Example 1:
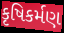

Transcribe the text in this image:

કૃષિકર્મણ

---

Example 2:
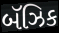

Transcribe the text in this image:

બૅઝિક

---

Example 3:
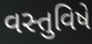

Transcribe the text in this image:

વસ્તુવિષે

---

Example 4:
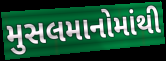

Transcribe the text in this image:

મુસલમાનોમાંથી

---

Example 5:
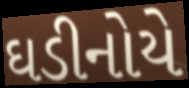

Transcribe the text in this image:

ઘડીનોયે